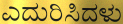
ಎದುರಿಸಿದಳು